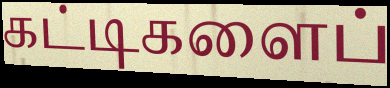
கட்டிகளைப்